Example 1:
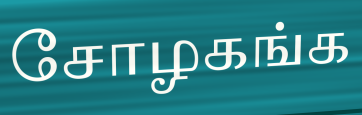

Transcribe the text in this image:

சோழகங்க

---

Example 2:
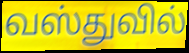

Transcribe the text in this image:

வஸ்துவில்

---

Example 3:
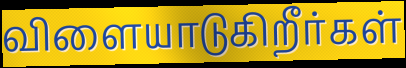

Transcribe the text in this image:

விளையாடுகிறீர்கள்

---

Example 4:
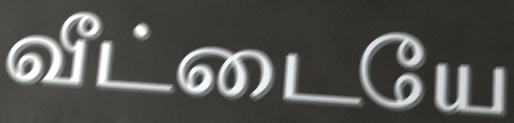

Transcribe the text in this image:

வீட்டையே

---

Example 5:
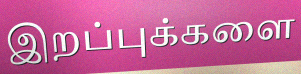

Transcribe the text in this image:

இறப்புக்களை